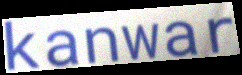
kanwar